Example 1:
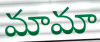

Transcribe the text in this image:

మామా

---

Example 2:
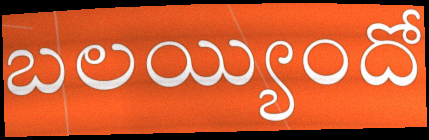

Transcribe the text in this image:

బలయ్యిందో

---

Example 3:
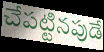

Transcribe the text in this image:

చేపట్టినపుడే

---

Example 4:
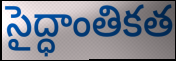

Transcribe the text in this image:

సైద్ధాంతికత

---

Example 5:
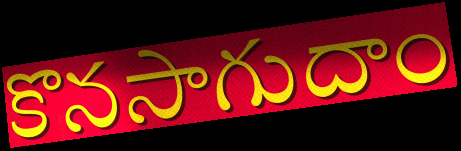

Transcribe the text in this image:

కొనసాగుదాం